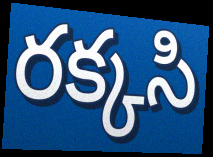
రక్కసి